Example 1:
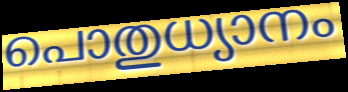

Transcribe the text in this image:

പൊതുധ്യാനം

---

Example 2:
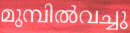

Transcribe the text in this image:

മുമ്പിൽവച്ചു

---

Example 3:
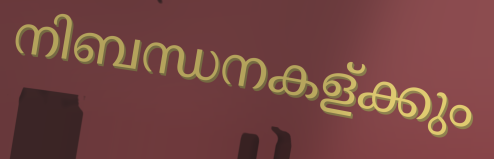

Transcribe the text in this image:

നിബന്ധനകള്ക്കും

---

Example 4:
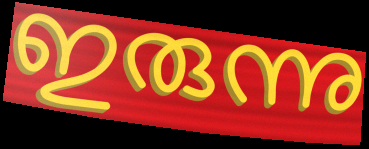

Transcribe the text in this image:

ഇരുന്നു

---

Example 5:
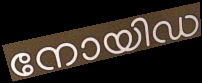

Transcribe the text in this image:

നോയിഡ